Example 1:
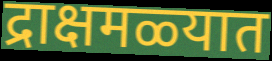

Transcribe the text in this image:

द्राक्षमळ्यात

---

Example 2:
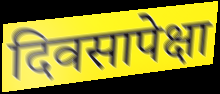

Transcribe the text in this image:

दिवसापेक्षा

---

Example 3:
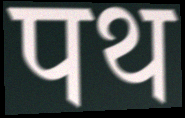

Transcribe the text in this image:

पथ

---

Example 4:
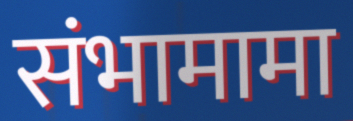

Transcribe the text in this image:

संभामामा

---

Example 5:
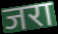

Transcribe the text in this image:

जरा